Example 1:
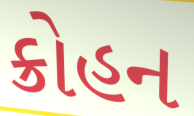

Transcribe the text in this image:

ક્રોહન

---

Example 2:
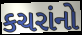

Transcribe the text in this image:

કચરાંનો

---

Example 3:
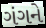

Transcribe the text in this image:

ગંગને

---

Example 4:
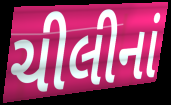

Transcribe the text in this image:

ચીલીનાં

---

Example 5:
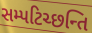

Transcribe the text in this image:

સમ્પટિચ્છન્તિ